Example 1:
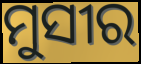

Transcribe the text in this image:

ମୁସୀର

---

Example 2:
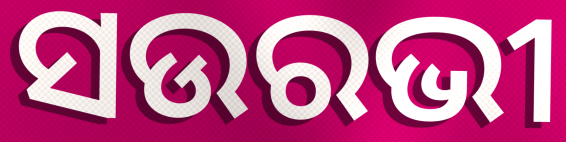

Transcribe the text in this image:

ସଉରଭୀ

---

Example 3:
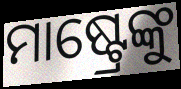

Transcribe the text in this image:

ମାଷ୍ଟ୍ରେଙ୍କୁ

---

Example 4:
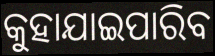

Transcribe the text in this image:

କୁହାଯାଇପାରିବ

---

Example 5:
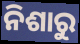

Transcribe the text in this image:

ନିଶାରୁ